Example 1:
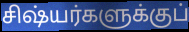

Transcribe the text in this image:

சிஷ்யர்களுக்குப்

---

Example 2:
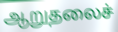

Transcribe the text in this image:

ஆறுதலைச்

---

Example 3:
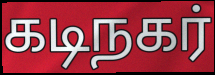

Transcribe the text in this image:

கடிநகர்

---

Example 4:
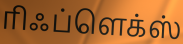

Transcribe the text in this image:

ரிஃப்ளெக்ஸ்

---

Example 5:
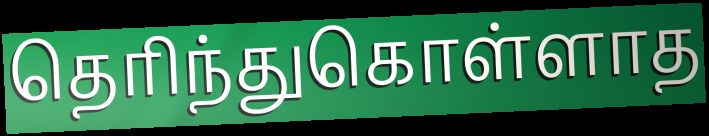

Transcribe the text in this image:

தெரிந்துகொள்ளாத